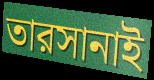
তারসানাই